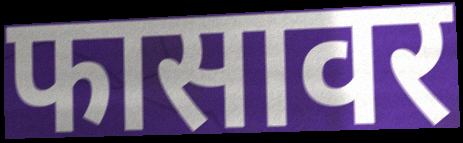
फासावर